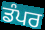
ਡੰਪਰ